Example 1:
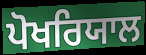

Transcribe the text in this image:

ਪੋਖਰਿਯਾਲ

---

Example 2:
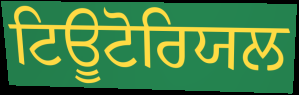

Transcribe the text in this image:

ਟਿਊਟੋਰਿਯਲ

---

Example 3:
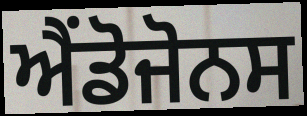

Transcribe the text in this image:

ਐਂਡੋਜੋਨਸ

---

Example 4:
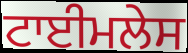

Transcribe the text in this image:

ਟਾਈਮਲੇਸ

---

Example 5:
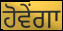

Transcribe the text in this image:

ਹੋਵੇਂਗਾ